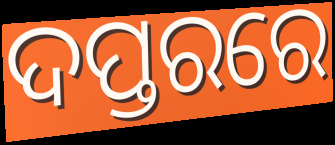
ଦପ୍ତରରେ